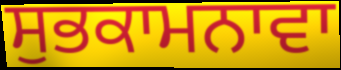
ਸੁਭਕਾਮਨਾਵਾ